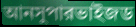
আনসুপারভাইজড